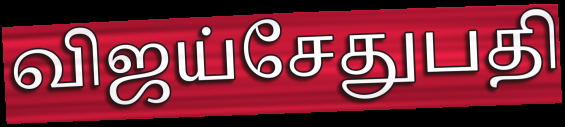
விஜய்சேதுபதி